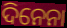
ଦିନେନା